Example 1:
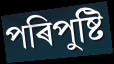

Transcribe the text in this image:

পৰিপুষ্টি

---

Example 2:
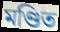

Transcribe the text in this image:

মণ্ডিত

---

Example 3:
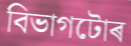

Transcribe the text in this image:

বিভাগটোৰ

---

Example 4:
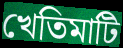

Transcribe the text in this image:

খেতিমাটি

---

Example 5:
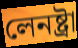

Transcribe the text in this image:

লেনষ্ট্ৰা